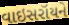
વાઇસરૉયને